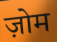
ज़ोम